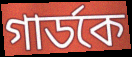
গার্ডকে